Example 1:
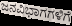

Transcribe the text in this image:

ಜನವಿಭಾಗಗಳಿಗೆ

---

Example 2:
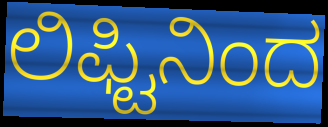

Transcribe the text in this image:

ಲಿಫ್ಟಿನಿಂದ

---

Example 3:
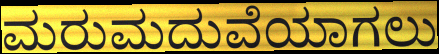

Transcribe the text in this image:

ಮರುಮದುವೆಯಾಗಲು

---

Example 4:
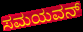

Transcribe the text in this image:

ಸಮಯವನ್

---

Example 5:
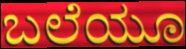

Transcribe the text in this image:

ಬಲೆಯೂ